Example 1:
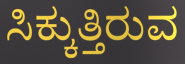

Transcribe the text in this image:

ಸಿಕ್ಕುತ್ತಿರುವ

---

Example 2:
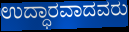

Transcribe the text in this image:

ಉದ್ಧಾರವಾದವರು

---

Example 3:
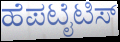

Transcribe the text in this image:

ಹೆಪಟೈಟಿಸ್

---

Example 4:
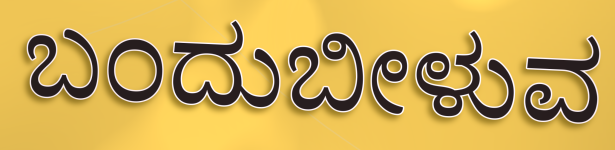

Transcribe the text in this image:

ಬಂದುಬೀಳುವ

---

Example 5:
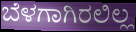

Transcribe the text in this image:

ಬೆಳಗಾಗಿರಲಿಲ್ಲ